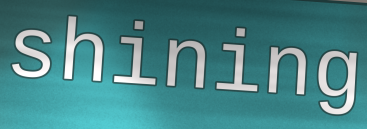
shining